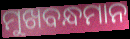
ମୁଖବନ୍ଧମାନ